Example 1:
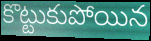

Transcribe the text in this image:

కొట్టుకుపోయిన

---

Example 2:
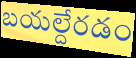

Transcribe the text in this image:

బయల్దేరడం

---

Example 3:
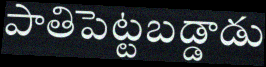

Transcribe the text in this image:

పాతిపెట్టబడ్డాడు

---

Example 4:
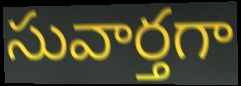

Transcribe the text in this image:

సువార్తగా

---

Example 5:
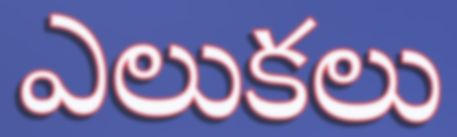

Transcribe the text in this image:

ఎలుకలు